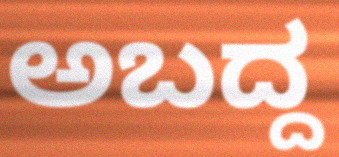
ಅಬದ್ದ